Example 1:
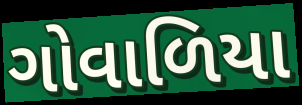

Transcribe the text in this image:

ગોવાળિયા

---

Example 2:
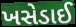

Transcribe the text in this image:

ખસેડાઈ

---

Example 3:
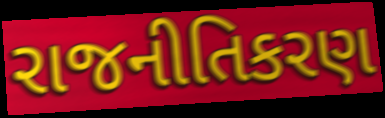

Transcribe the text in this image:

રાજનીતિકરણ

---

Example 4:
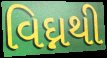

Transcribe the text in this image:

વિઘ્નથી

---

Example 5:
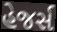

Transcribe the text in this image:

હેજર્સ